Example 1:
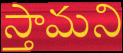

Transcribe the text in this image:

స్తామని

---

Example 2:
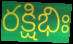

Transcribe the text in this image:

రక్షిభిః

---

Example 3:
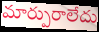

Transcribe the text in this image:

మార్పురాలేదు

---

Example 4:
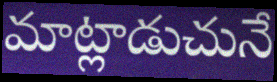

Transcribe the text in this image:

మాట్లాడుచునే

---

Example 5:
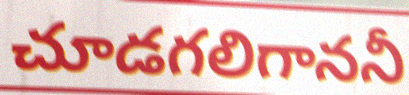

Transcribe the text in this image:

చూడగలిగాననీ